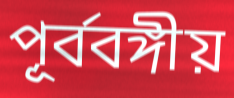
পূর্ববঙ্গীয়